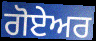
ਗੋਏਅਰ